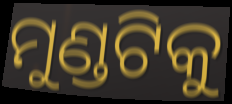
ମୁଣ୍ଡଟିକୁ